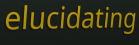
elucidating